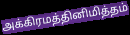
அக்கிரமத்தினிமித்தம்